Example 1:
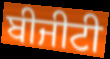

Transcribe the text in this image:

ਬੀਜੀਟੀ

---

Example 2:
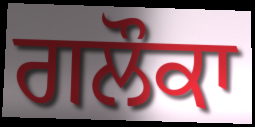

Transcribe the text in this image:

ਗਲੌਕਾ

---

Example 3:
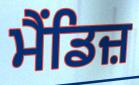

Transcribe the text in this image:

ਮੈਂਡਿਜ਼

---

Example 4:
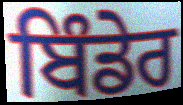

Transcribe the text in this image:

ਬਿੰਡੇਰ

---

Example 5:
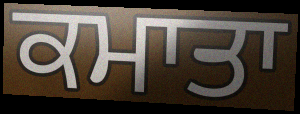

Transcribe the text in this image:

ਕਮਾਤਾ